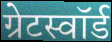
ग्रेटस्वॉर्ड